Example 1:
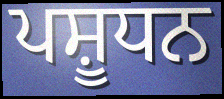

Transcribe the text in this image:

ਪਸ਼ੂਧਨ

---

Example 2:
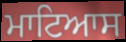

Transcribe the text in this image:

ਮਾਟਿਆਸ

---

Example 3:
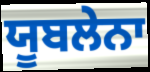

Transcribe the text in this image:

ਯੂਬਲੇਨਾ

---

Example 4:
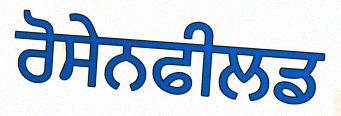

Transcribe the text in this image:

ਰੋਸੇਨਫੀਲਡ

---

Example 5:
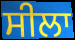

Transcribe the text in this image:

ਸੀਲਾ